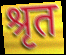
श्रृत